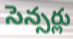
సెన్సర్లు